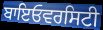
ਬਾਇਓਵਰਸਿਟੀ